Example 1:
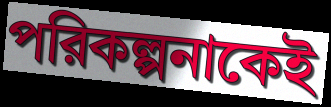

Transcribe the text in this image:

পরিকল্পনাকেই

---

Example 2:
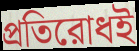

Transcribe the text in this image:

প্রতিরোধই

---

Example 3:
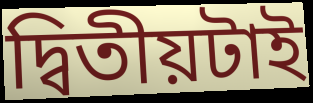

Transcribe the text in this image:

দ্বিতীয়টাই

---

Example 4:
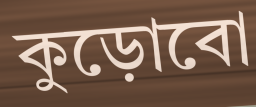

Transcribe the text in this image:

কুড়োবো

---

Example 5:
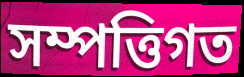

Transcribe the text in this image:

সম্পত্তিগত